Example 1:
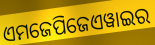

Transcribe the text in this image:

ଏମଜେପିଜେଏୱାଇର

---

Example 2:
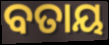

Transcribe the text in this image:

ବତାୟ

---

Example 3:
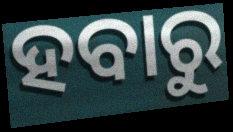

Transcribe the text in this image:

ହବାରୁ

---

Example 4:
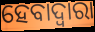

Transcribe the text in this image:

ହେବାଦ୍ୱାରା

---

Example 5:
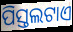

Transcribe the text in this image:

ପିସ୍ତଲଟାଏ